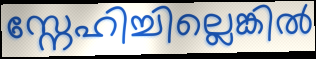
സ്നേഹിച്ചില്ലെങ്കിൽ